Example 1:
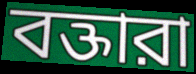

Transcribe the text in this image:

বক্তারা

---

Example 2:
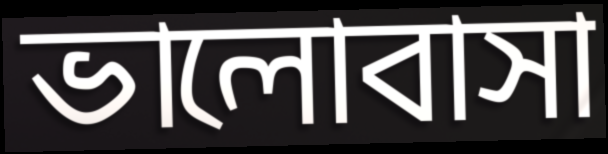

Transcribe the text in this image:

ভালোবাসা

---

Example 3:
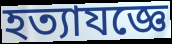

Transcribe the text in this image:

হত্যাযজ্ঞে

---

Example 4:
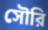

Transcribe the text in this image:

সৌরি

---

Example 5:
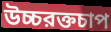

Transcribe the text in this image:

উচ্চরক্তচাপ